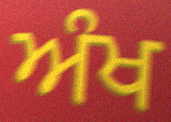
ਅੰਖ